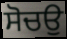
ਸੋਚਉ